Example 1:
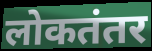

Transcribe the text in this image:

लोकतंतर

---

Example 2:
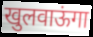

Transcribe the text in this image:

खुलवाऊंगा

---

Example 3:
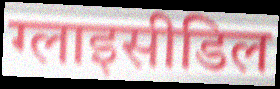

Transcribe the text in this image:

ग्लाइसीडिल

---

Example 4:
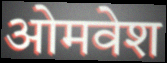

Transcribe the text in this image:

ओमवेश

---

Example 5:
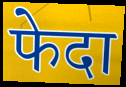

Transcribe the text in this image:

फेदा